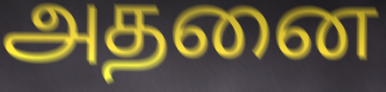
அதனை